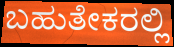
ಬಹುತೇಕರಲ್ಲಿ